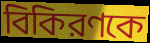
বিকিরণকে